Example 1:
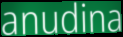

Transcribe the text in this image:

anudina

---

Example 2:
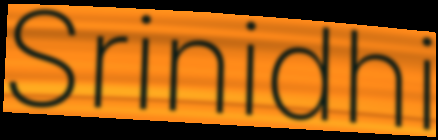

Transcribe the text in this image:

Srinidhi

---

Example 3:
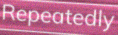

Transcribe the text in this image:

Repeatedly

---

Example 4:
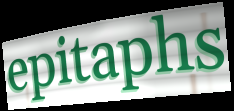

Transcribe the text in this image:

epitaphs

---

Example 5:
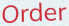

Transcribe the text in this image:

Order